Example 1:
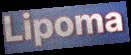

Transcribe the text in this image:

Lipoma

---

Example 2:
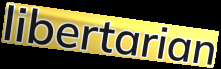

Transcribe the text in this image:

libertarian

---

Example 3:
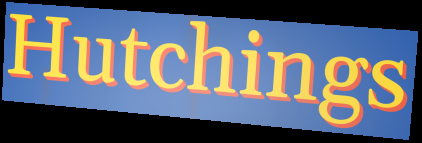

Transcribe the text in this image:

Hutchings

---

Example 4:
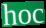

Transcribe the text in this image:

hoc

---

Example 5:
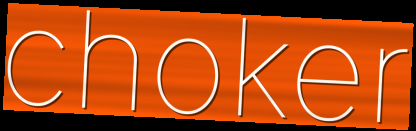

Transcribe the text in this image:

choker